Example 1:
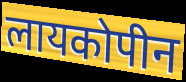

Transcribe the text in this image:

लायकोपीन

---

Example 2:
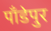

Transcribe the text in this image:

पाँडेपुर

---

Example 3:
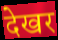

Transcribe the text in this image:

देखर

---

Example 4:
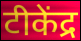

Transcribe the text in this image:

टीकेंद्र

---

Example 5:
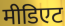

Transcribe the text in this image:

मीडिएट